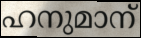
ഹനുമാന്